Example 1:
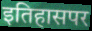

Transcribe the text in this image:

इतिहासपर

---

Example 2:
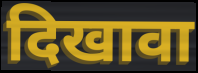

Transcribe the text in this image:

दिखावा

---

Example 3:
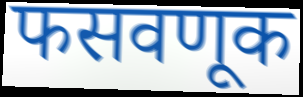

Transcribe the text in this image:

फसवणूक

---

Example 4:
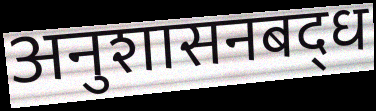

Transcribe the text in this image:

अनुशासनबद्ध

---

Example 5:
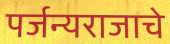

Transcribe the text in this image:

पर्जन्यराजाचे